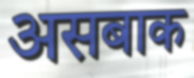
असबाक